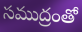
సముద్రంతో